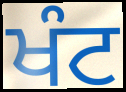
ਖੰਟ